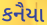
કનૈયા